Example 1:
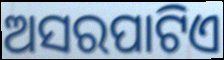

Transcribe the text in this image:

ଅସରପାଟିଏ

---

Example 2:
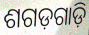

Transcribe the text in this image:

ଶଗଡ଼ଗାଡ଼ି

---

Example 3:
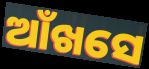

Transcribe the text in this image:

ଆଁଖସେ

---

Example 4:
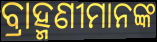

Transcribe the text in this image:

ବ୍ରାହ୍ମଣୀମାନଙ୍କ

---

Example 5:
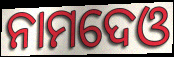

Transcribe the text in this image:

ନାମଦେଓ